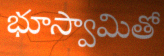
భూస్వామితో